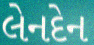
લેનદેન